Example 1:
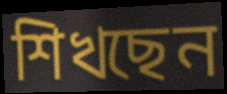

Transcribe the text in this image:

শিখছেন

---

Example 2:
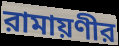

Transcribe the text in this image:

রামায়ণীর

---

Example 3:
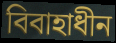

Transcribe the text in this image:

বিবাহাধীন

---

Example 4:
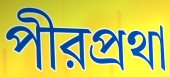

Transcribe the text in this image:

পীরপ্রথা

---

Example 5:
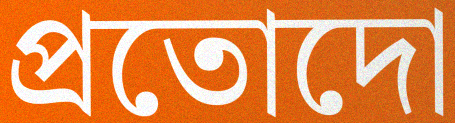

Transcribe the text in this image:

প্রতোদো